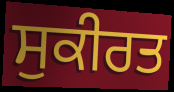
ਸੁਕੀਰਤ